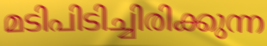
മടിപിടിച്ചിരിക്കുന്ന